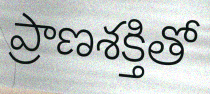
ప్రాణశక్తితో